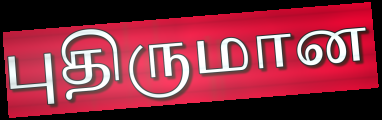
புதிருமான